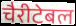
चैरीटेबल